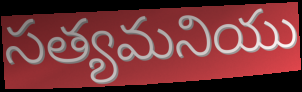
సత్యమనియు